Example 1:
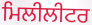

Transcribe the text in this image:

ਮਿਲੀਲੀਟਰ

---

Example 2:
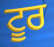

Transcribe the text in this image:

ਟੂਰ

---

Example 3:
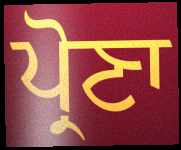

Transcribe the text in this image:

ਪ੍ਰੋਣਾ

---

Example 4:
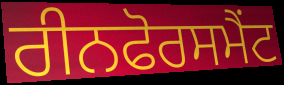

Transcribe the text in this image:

ਰੀਨਫੋਰਸਮੈਂਟ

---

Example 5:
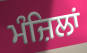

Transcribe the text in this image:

ਮੰਜ਼ਿਲਾਂ